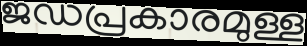
ജഡപ്രകാരമുള്ള